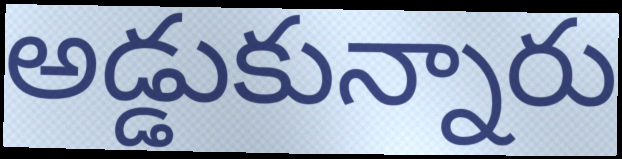
అడ్డుకున్నారు